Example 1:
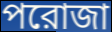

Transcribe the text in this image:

পরোজা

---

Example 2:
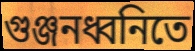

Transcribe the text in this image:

গুঞ্জনধ্বনিতে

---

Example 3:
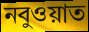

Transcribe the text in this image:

নবুওয়াত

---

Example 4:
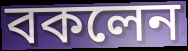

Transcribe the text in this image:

বকলেন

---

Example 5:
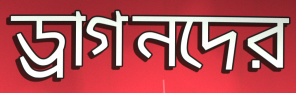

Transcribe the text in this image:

ড্রাগনদের